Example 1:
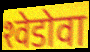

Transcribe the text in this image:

श्वेडोवा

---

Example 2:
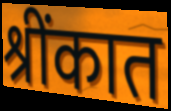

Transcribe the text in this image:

श्रींकात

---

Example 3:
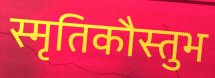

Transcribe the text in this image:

स्मृतिकौस्तुभ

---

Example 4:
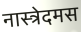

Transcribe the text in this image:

नास्त्रेदमस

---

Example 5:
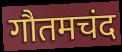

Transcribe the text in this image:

गौतमचंद